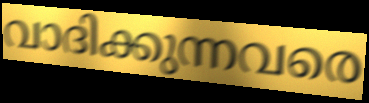
വാദിക്കുന്നവരെ